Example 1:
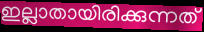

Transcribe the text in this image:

ഇല്ലാതായിരിക്കുന്നത്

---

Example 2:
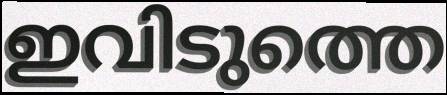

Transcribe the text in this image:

ഇവിടുത്തെ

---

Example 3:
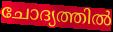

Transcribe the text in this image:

ചോദ്യത്തിൽ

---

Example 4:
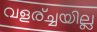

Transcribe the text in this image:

വളര്ച്ചയില്ല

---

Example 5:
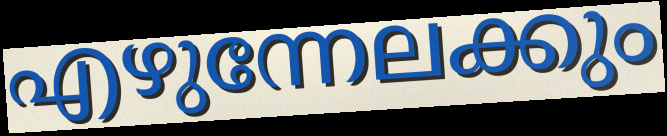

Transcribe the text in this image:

എഴുന്നേലക്കും